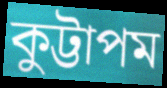
কুট্টাপম